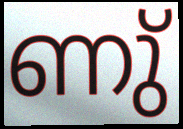
ണു്